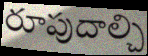
రూపుదాల్చి